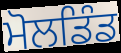
ਮੋਲਡਿੰਡ